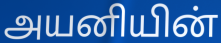
அயனியின்